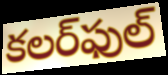
కలర్‌ఫుల్